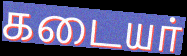
கடையர்